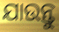
ଯାଉନ୍ତୁ